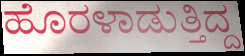
ಹೊರಳಾಡುತ್ತಿದ್ದ